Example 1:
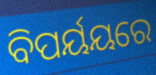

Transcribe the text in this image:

ବିପର୍ୟୟରେ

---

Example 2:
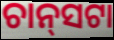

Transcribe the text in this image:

ଚାନ୍‌ସଟା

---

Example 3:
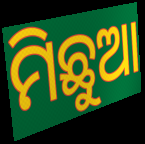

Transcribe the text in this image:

ମିଛୁଆ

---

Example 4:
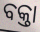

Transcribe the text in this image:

ବକ୍ତା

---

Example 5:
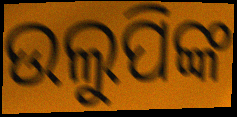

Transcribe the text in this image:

ଉଲୁପିଙ୍କ